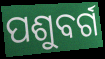
ପଶୁବର୍ଗ